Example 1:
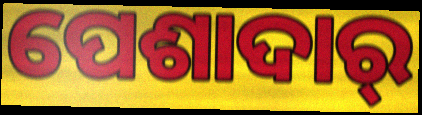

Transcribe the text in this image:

ପେଶାଦାର୍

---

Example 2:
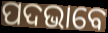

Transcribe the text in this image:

ପଦଭାବେ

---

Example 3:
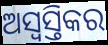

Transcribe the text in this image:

ଅସ୍ୱସ୍ତିକର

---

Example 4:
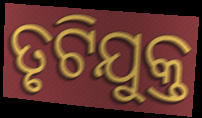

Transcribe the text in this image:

ତୃଟିଯୁକ୍ତ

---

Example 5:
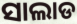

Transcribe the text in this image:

ସାଲାଡ